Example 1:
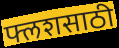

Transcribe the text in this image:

फ्लशसाठी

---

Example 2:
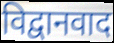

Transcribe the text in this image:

विद्वानवाद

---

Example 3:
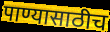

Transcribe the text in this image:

पाण्यासाठीच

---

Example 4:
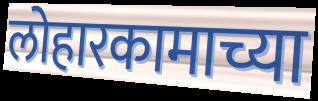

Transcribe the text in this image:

लोहारकामाच्या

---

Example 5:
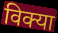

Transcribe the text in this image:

विक्या